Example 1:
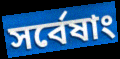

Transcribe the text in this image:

সর্বেষাং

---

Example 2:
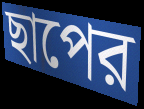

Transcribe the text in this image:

ছাপের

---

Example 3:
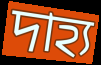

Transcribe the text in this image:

দাহ্য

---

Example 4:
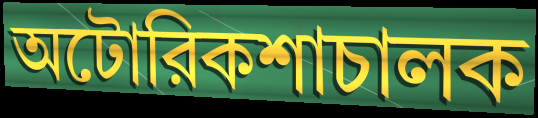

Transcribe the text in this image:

অটোরিকশাচালক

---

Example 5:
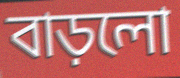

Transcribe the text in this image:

বাড়লো